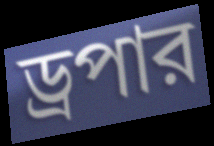
ড্রপার